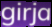
girja